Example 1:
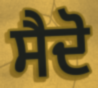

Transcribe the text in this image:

ਸੈਦੋ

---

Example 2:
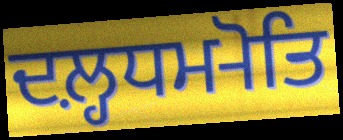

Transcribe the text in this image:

ਦਲ਼੍ਹਧਮ੍ਮੋਤਿ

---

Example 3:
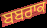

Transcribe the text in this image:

ਬਬਰਾਕ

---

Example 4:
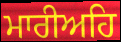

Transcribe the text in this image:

ਮਾਰੀਅਹਿ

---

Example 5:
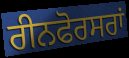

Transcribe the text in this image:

ਰੀਨਫੋਰਸਰਾਂ